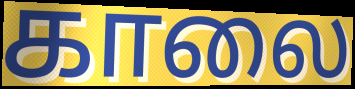
காலை